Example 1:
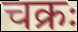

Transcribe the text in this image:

चक्रः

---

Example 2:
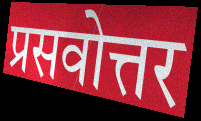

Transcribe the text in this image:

प्रसवोत्तर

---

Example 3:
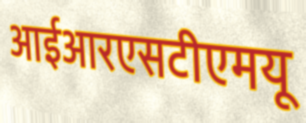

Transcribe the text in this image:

आईआरएसटीएमयू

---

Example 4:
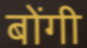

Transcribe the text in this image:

बोंगी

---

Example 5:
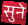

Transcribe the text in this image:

सुने